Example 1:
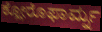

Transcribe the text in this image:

ಕ್ಲೋರೊಫಾರ್ಮ್ನ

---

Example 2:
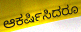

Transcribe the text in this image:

ಆಕರ್ಷಿಸಿದರೂ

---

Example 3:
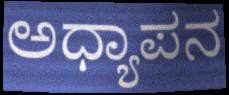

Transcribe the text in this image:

ಅಧ್ಯಾಪನ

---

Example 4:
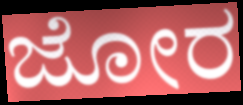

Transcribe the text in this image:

ಜೋರ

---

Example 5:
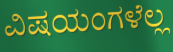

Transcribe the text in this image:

ವಿಷಯಂಗಳೆಲ್ಲ